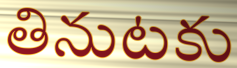
తినుటకు